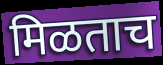
मिळताच